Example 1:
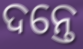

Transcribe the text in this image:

ଦନ୍ତେ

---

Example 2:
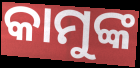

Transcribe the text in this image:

କାମୁଙ୍କ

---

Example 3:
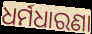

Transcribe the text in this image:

ଧର୍ମଧାରଣା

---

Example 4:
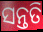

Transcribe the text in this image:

ସନ୍ତତି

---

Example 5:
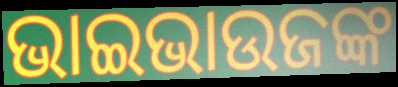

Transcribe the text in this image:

ଭାଇଭାଉଜଙ୍କ